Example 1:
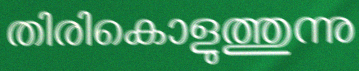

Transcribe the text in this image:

തിരികൊളുത്തുന്നു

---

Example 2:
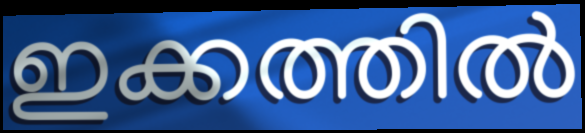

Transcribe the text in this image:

ഇക്കത്തിൽ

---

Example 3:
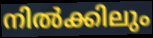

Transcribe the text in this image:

നിൽക്കിലും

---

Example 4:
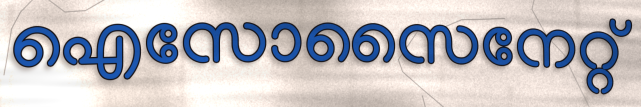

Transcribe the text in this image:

ഐസോസൈനേറ്റ്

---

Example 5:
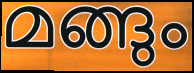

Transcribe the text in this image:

മങ്ങും